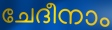
ചേദീനാം